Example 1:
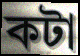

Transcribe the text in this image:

কটা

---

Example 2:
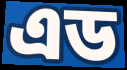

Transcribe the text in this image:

এড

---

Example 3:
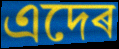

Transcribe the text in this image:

এদেৰ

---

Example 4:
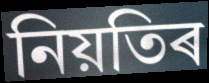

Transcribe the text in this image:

নিয়তিৰ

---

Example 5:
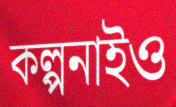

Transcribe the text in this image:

কল্পনাইও